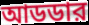
আডডার